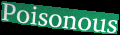
Poisonous